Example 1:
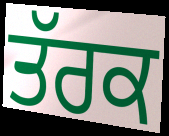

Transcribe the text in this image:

ਤੱਰਕ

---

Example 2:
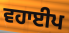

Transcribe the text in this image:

ਵਹਾਈਪ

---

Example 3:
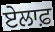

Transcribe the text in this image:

ਏਲਾਫ਼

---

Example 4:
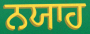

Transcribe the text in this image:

ਨਯਾਹ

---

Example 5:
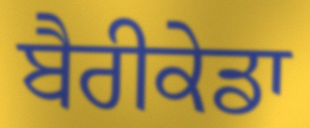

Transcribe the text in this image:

ਬੈਰੀਕੇਡਾ